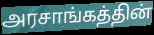
அரசாங்கத்தின்